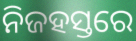
ନିଜହସ୍ତରେ